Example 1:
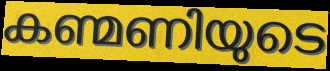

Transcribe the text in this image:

കണ്മണിയുടെ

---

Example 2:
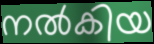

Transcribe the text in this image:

നൽകിയ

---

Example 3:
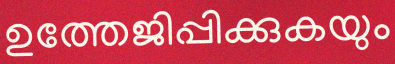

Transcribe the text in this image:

ഉത്തേജിപ്പിക്കുകയും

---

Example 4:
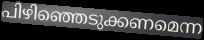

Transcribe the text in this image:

പിഴിഞ്ഞെടുക്കണമെന്ന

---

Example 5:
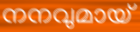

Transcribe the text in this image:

നനവുമായ്